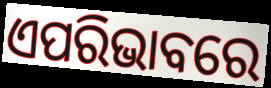
ଏପରିଭାବରେ